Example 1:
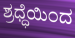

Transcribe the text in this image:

ಶ್ರಧ್ಧೆಯಿಂದ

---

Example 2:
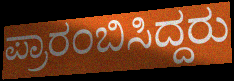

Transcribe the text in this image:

ಪ್ರಾರಂಬಿಸಿದ್ದರು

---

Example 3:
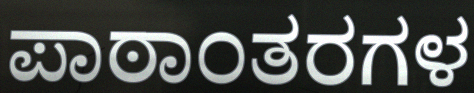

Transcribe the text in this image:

ಪಾಠಾಂತರಗಳ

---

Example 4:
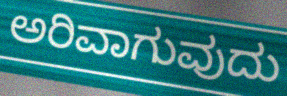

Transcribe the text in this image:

ಅರಿವಾಗುವುದು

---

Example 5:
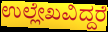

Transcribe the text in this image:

ಉಲ್ಲೇಖವಿದ್ದರೆ